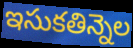
ఇసుకతిన్నెల